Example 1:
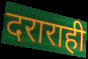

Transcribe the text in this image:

दराराही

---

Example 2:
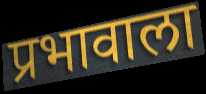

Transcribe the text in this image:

प्रभावाला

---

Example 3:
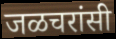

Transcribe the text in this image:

जळचरांसी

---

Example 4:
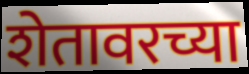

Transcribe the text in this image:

शेतावरच्या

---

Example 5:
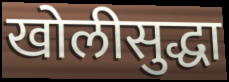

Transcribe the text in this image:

खोलीसुद्धा